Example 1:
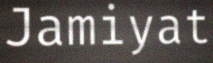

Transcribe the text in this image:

Jamiyat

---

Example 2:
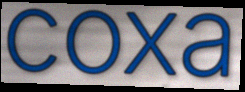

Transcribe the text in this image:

coxa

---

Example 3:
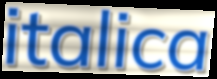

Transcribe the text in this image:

italica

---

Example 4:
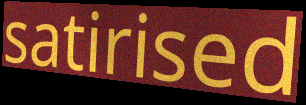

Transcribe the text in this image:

satirised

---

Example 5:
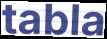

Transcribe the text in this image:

tabla